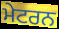
ਮੇਟਰਨ